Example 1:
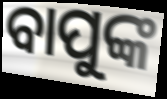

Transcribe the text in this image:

ବାପୁଙ୍କ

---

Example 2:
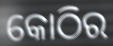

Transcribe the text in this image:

କୋଠିର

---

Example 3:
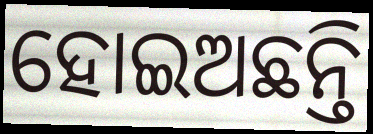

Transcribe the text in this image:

ହୋଇଅଛନ୍ତି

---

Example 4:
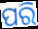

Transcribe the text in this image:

ପରି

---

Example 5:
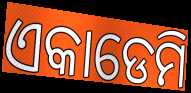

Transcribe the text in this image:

ଏକାଡେମି